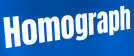
Homograph